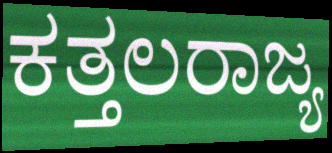
ಕತ್ತಲರಾಜ್ಯ